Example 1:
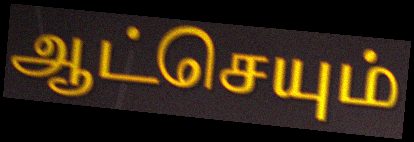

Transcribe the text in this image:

ஆட்செயும்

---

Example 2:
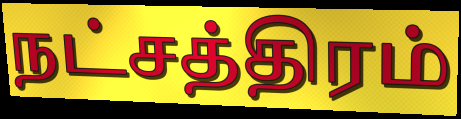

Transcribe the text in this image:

நட்சத்திரம்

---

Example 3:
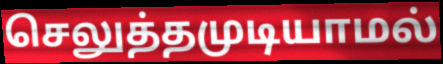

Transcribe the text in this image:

செலுத்தமுடியாமல்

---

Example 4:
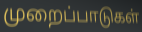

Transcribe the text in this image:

முறைப்பாடுகள்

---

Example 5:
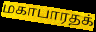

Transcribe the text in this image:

மகாபாரதக்